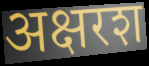
अक्षरश